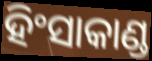
ହିଂସାକାଣ୍ଡ